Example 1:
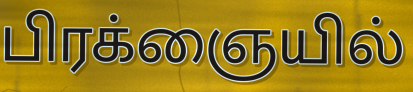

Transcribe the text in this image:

பிரக்ஞையில்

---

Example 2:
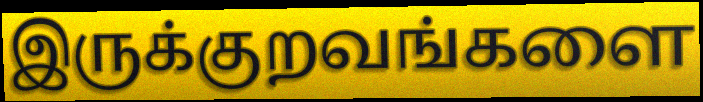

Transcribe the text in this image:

இருக்குறவங்களை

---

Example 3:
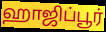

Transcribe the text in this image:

ஹாஜிப்பூர்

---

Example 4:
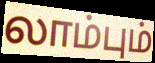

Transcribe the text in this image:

லாம்பும்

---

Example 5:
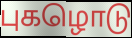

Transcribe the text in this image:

புகழொடு